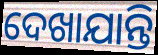
ଦେଖାଯାନ୍ତି